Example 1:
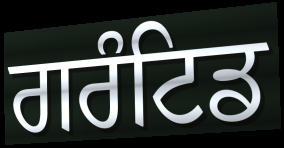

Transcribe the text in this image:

ਗਰੰਟਿਡ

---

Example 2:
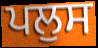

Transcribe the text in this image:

ਪਲੁਸ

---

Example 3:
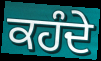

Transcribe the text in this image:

ਕਹੰਦੇ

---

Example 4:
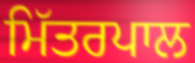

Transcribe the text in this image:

ਮਿੱਤਰਪਾਲ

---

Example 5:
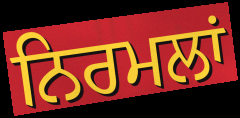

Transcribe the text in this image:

ਨਿਰਮਲਾਂ